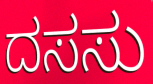
ದಸಸು